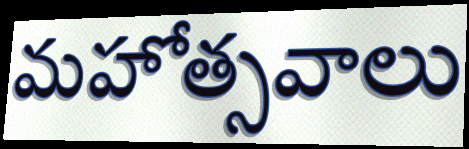
మహోత్సవాలు